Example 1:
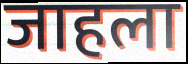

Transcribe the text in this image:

जाहला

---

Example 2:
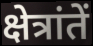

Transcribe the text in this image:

क्षेत्रांतें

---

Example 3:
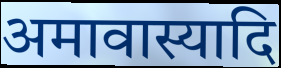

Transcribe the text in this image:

अमावास्यादि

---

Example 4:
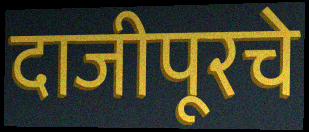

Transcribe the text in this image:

दाजीपूरचे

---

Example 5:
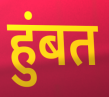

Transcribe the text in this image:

हुंबत